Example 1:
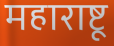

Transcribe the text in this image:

महाराष्टू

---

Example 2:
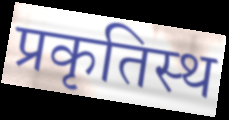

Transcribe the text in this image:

प्रकृतिस्थ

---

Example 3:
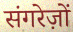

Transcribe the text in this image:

संगरेज़ों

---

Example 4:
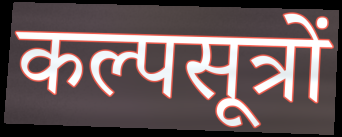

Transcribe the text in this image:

कल्पसूत्रों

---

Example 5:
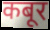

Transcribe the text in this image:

कबूर